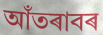
আঁতৰাবৰ